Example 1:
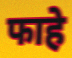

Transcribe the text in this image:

फाहे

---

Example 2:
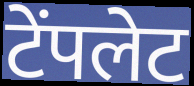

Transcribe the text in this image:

टेंपलेट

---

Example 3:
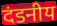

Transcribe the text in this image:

दंडनीय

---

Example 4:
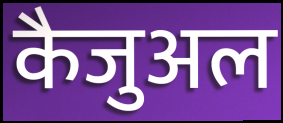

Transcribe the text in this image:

कैजुअल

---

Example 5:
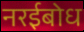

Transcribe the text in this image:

नरईबोध